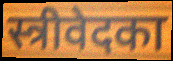
स्त्रीवेदका